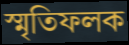
স্মৃতিফলক